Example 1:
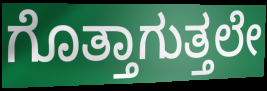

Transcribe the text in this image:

ಗೊತ್ತಾಗುತ್ತಲೇ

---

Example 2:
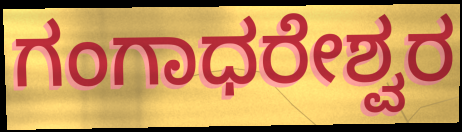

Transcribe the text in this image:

ಗಂಗಾಧರೇಶ್ವರ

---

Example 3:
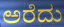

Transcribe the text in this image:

ಅರೆದು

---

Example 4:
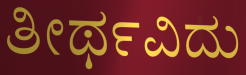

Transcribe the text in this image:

ತೀರ್ಥವಿದು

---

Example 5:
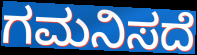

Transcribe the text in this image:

ಗಮನಿಸದೆ